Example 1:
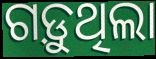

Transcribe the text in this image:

ଗଡ଼ୁଥିଲା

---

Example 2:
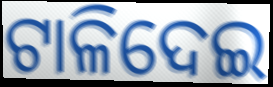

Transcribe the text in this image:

ଟାଳିଦେଇ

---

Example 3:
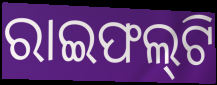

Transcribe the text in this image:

ରାଇଫଲ୍‍ଟି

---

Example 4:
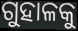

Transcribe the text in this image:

ଗୁହାଳକୁ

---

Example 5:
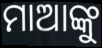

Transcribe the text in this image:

ମାଆଙ୍କୁ